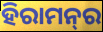
ହିରାମନ୍‍ର